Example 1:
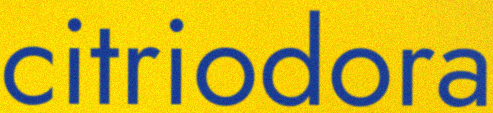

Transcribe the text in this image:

citriodora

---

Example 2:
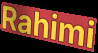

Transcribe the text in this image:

Rahimi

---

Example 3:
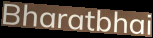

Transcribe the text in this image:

Bharatbhai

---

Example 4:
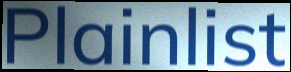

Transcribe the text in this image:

Plainlist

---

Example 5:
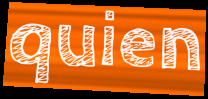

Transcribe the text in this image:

quien